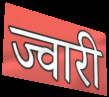
ज्वारी